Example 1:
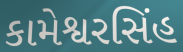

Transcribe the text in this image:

કામેશ્વરસિંહ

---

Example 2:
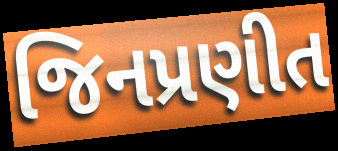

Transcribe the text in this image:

જિનપ્રણીત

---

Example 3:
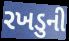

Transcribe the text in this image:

રખડુની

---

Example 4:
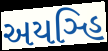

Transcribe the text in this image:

અયઞ્હિ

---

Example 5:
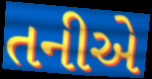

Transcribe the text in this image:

તનીએ